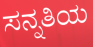
ಸನ್ನತಿಯ